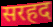
सरहद